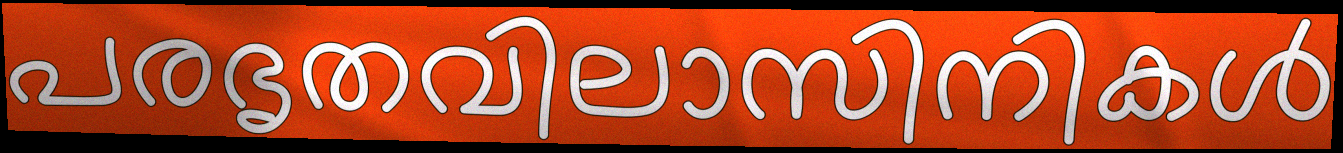
പരഭൃതവിലാസിനികൾ